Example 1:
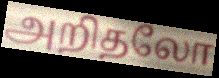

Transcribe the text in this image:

அறிதலோ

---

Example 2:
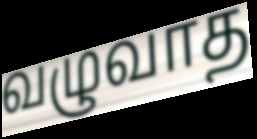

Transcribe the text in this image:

வழுவாத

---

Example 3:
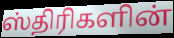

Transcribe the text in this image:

ஸ்திரிகளின்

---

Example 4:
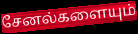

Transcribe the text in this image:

சேனல்களையும்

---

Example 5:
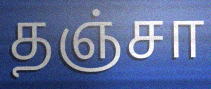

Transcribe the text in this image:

தஞ்சா